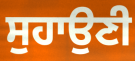
ਸੁਹਾਉਣੀ